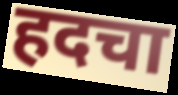
हदचा